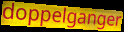
doppelganger